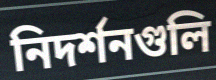
নিদর্শনগুলি